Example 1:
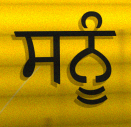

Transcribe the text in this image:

ਸਨੂੰ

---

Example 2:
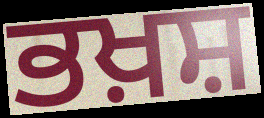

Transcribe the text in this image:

ਭਖ਼ਸ਼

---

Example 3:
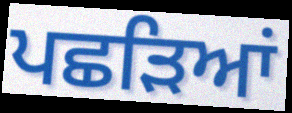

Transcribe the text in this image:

ਪਛੜਿਆਂ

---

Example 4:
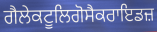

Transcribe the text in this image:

ਗੈਲੇਕਟੂਲਿਗੋਸੈਕਰਾਇਡਜ਼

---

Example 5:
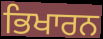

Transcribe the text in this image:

ਭਿਖਾਰਨ